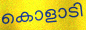
കൊളാടി